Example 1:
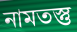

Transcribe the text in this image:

নামতস্তু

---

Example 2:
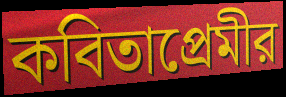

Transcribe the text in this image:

কবিতাপ্রেমীর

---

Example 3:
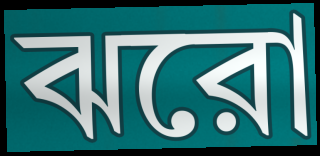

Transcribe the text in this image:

ঝরো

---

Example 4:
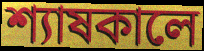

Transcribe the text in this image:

শ্যাষকালে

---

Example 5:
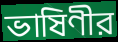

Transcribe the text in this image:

ভাষিণীর